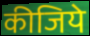
कीजिये